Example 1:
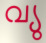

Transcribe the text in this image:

വ്യു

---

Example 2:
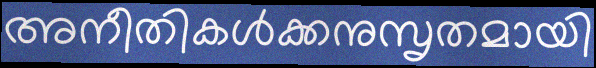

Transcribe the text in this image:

അനീതികൾക്കനുസൃതമായി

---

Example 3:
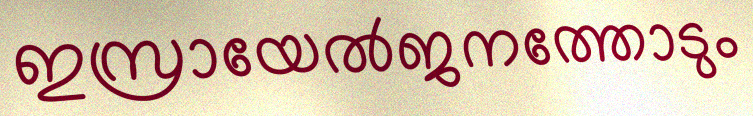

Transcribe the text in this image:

ഇസ്രായേൽജനത്തോടും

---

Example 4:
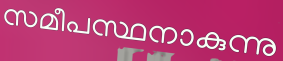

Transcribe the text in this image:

സമീപസ്ഥനാകുന്നു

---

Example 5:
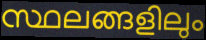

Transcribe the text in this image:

സ്ഥലങ്ങളിലും